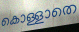
കൊള്ളാതെ